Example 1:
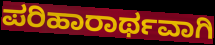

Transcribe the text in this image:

ಪರಿಹಾರಾರ್ಥವಾಗಿ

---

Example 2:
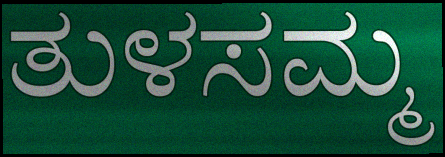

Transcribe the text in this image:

ತುಳಸಮ್ಮ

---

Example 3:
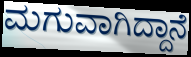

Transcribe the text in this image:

ಮಗುವಾಗಿದ್ದಾನೆ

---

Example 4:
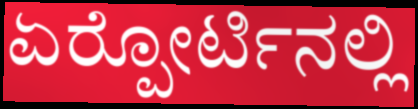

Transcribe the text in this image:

ಏರ್‍ಪೋರ್ಟಿನಲ್ಲಿ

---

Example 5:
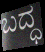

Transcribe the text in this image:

ಬದ್ಧ